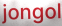
jongol